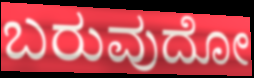
ಬರುವುದೋ